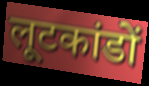
लूटकांडों